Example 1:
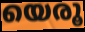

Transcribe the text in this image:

യെരൂ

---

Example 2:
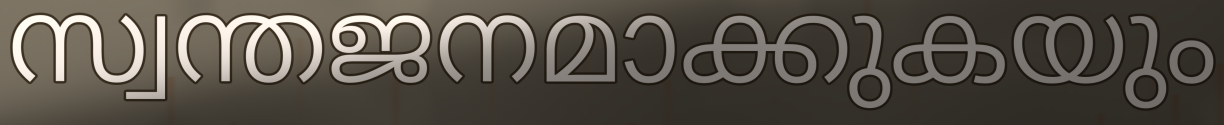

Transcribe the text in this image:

സ്വന്തജനമാക്കുകയും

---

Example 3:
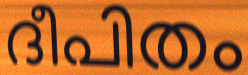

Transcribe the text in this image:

ദീപിതം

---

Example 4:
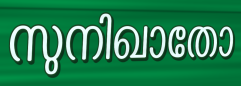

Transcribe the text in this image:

സുനിഖാതോ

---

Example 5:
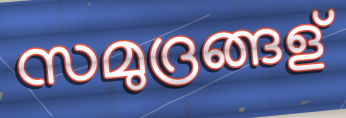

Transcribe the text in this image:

സമുദ്രങ്ങള്